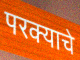
परक्याचे